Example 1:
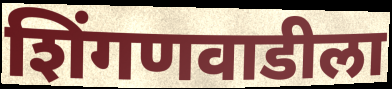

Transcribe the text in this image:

शिंगणवाडीला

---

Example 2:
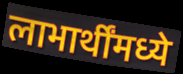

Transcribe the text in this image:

लाभार्थींमध्ये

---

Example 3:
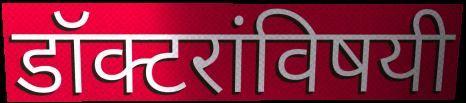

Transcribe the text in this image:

डॉक्टरांविषयी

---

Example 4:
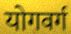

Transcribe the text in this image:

योगवर्ग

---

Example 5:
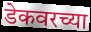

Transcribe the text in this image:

डेकवरच्या